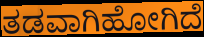
ತಡವಾಗಿಹೋಗಿದೆ